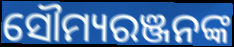
ସୌମ୍ୟରଞ୍ଜନଙ୍କ